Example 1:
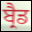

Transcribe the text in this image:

ਬ੍ਰੈਡ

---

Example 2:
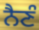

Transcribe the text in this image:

ਨੈਣੰ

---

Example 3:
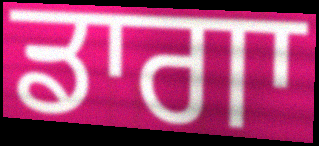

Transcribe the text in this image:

ਡਾਗਾ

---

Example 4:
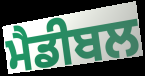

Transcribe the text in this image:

ਮੈਡੀਬਲ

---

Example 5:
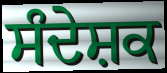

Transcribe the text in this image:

ਸੰਦੇਸ਼ਕ